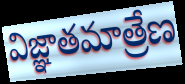
విజ్ఞాతమాత్రేణ